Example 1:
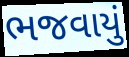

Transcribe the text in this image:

ભજવાયું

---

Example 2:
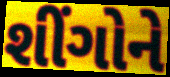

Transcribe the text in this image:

શીંગોને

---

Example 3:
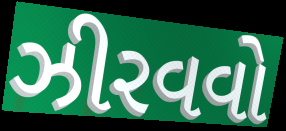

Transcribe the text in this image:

ઝીરવવો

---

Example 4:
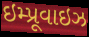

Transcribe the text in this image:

ઇમ્પ્રૂવાઇઝ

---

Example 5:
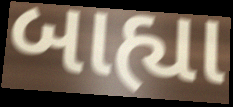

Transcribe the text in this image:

બાહ્યા